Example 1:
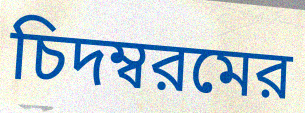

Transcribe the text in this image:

চিদম্বরমের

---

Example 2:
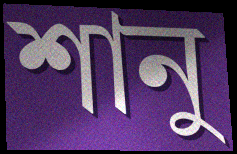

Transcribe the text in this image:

শানু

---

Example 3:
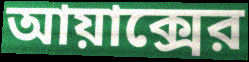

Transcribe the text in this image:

আয়াক্সের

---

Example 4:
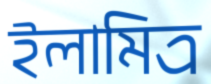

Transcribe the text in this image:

ইলামিত্র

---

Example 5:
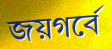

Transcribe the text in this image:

জয়গর্বে